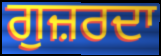
ਗੁਜ਼ਰਦਾ